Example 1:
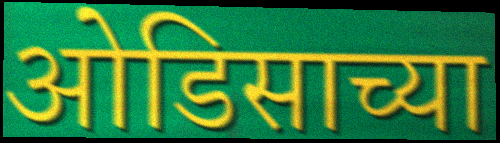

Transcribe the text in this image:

ओडिसाच्या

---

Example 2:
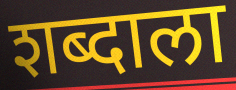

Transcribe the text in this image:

शब्दाला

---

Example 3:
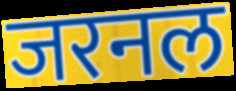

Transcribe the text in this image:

जरनल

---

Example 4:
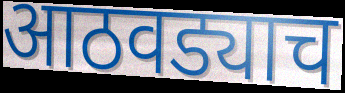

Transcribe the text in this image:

आठवड्याच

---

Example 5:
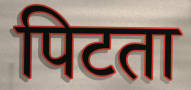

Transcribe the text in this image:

पिटता